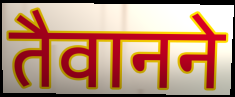
तैवानने